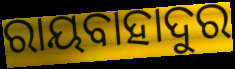
ରାୟବାହାଦୁର